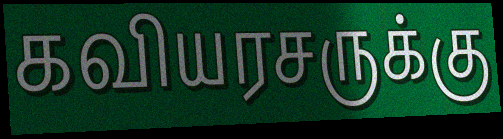
கவியரசருக்கு